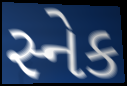
સ્નેક